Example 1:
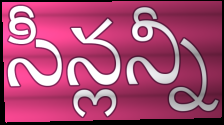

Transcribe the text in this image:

సీన్లన్నీ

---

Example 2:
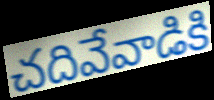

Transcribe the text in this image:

చదివేవాడికి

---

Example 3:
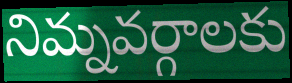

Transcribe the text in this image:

నిమ్నవర్గాలకు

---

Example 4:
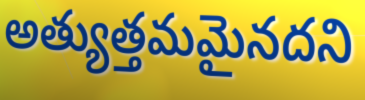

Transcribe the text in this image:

అత్యుత్తమమైనదని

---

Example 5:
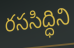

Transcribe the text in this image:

రససిద్ధిని